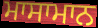
ਮਾਸਾਮਾਨ